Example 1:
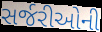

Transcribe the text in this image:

સર્જરીઓની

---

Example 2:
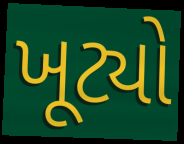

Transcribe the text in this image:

ખૂટ્યો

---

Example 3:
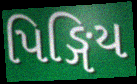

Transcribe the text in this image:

પિઙ્ગિય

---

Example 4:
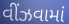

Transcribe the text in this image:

વીંઝવામાં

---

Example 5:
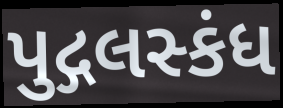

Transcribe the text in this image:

પુદ્ગલસ્કંધ